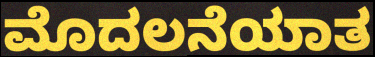
ಮೊದಲನೆಯಾತ